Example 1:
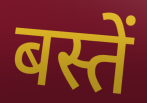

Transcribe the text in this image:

बस्तें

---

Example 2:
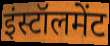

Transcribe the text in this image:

इंस्टॉलमेंट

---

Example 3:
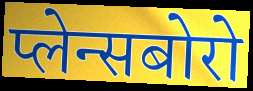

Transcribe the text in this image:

प्लेन्सबोरो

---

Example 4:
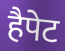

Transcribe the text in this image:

हैपेट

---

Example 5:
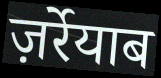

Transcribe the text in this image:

ज़र्रेयाब